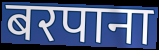
बरपाना